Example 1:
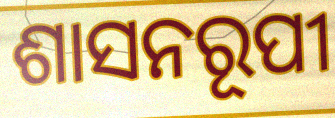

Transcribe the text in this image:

ଶାସନରୂପୀ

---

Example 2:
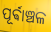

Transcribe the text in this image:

ପୂର୍ଵାଞ୍ଚଳ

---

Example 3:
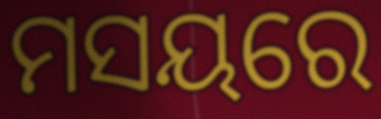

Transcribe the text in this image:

ମସୟରେ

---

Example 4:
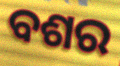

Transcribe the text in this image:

ବଶର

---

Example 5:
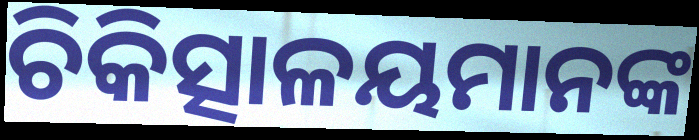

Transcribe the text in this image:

ଚିକିତ୍ସାଳୟମାନଙ୍କ